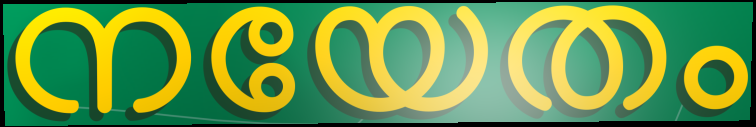
നയേതം